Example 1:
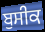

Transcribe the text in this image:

ਬੁਸੀਕ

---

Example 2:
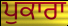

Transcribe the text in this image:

ਪੁਕਾਰਾ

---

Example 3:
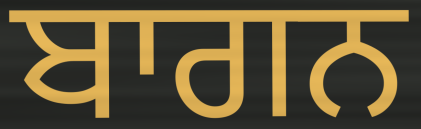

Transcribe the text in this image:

ਬਾਗਨ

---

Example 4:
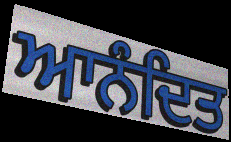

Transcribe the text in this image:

ਆਨੰਦਿਤ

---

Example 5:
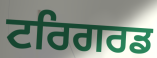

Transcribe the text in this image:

ਟਰਿਗਰਡ